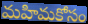
మహిమకోసం